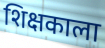
शिक्षकाला